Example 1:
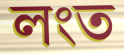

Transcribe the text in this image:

লংত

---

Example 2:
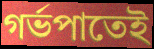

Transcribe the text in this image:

গৰ্ভপাতেই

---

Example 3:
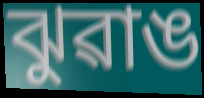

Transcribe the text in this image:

ঝুৱাঙ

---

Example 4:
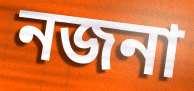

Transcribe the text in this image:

নজনা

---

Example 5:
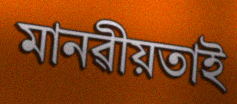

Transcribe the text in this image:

মানৱীয়তাই